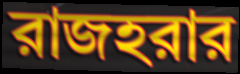
রাজহরার